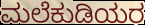
ಮಲೆಕುಡಿಯರ